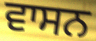
ਵਾਸਨ